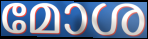
മോശ